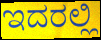
ಇದರಲ್ಲಿ